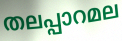
തലപ്പാറമല